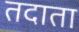
तदाता